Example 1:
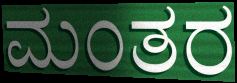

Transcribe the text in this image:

ಮಂತರ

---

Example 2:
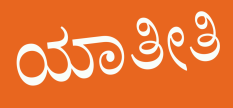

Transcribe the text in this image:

ಯಾತೀತಿ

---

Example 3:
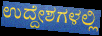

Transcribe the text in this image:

ಉದ್ದೇಶಗಳಲ್ಲಿ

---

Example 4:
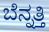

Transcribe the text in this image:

ಬೆನ್ನತ್ತಿ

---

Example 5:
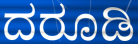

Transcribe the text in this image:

ದರೂಡಿ